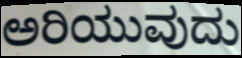
ಅರಿಯುವುದು